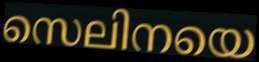
സെലിനയെ